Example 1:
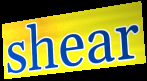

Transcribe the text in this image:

shear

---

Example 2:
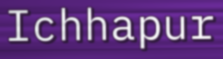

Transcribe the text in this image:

Ichhapur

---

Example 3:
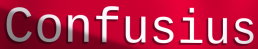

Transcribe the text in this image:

Confusius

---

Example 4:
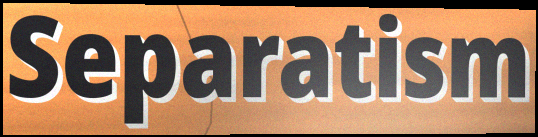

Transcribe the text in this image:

Separatism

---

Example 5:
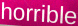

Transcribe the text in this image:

horrible